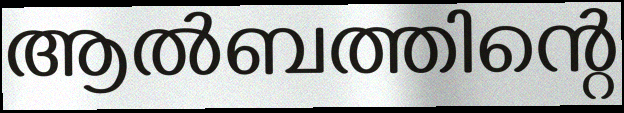
ആൽബത്തിന്റെ